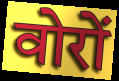
वोरों